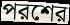
পরশের